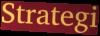
Strategi